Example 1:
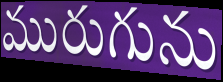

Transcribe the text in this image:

మురుగును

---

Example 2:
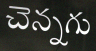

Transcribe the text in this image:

చెన్నగు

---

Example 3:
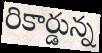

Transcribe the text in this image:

రికార్డున్న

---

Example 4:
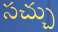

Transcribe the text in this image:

సచ్చు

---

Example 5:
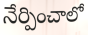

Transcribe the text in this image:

నేర్పించాలో